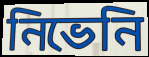
নিভেনি